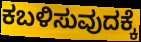
ಕಬಳಿಸುವುದಕ್ಕೆ